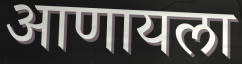
आणायला